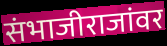
संभाजीराजांवर